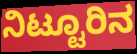
ನಿಟ್ಟೂರಿನ